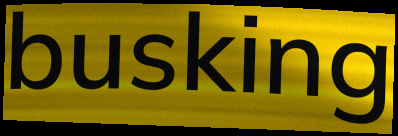
busking